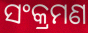
ସଂକ୍ରମଣ